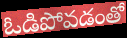
ఓడిపోవడంతో